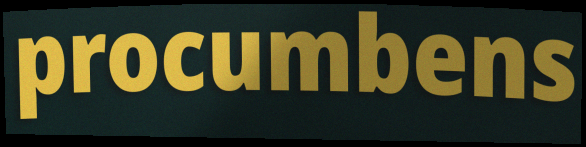
procumbens